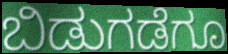
ಬಿಡುಗಡೆಗೂ